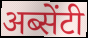
अब्सेंटी